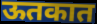
ऊतकात